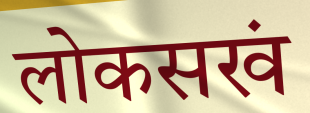
लोकसखं